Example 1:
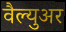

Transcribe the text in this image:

वैल्युअर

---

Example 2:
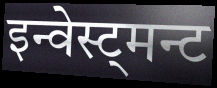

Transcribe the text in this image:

इन्वेस्ट्मन्ट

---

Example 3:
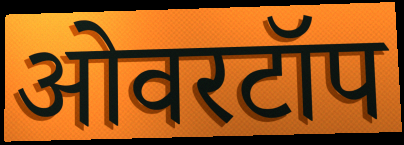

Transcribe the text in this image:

ओवरटॉप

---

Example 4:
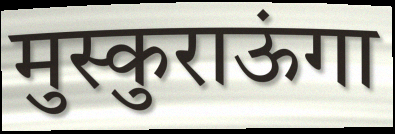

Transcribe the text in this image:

मुस्कुराऊंगा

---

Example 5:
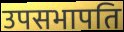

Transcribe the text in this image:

उपसभापति